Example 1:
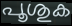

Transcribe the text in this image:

പൂശുക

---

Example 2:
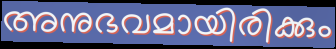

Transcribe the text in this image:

അനുഭവമായിരിക്കും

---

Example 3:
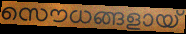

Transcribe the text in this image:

സൌധങ്ങളായ്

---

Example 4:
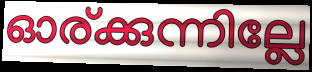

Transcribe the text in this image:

ഓര്ക്കുന്നില്ലേ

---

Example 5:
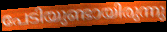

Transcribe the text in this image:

പേടിയുണ്ടായിരുന്നു